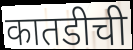
कातडीची